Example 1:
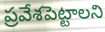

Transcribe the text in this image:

ప్రవేశపెట్టాలని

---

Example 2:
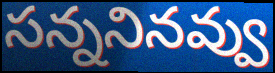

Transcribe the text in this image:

సన్ననినవ్వు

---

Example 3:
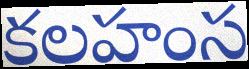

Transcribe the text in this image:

కలహంస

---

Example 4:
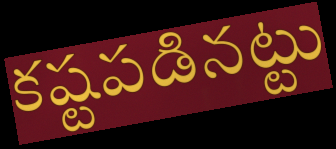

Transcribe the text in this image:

కష్టపడినట్టు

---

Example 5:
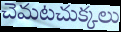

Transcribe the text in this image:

చెమటచుక్కలు